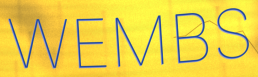
WEMBS